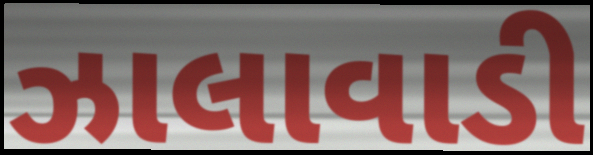
ઝાલાવાડી